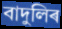
বাদুলিৰ